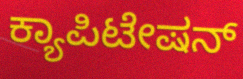
ಕ್ಯಾಪಿಟೇಷನ್